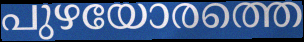
പുഴയോരത്തെ